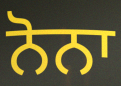
ਨੋਨਾ